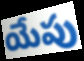
యేపు